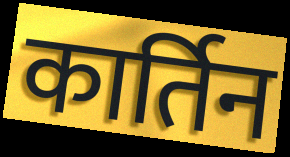
कार्तिन